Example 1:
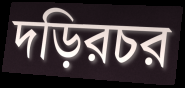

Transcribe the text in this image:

দড়িরচর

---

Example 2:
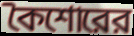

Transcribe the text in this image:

কৈশোরের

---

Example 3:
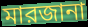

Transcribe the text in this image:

মারজানা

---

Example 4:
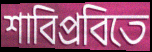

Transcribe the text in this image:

শাবিপ্রবিতে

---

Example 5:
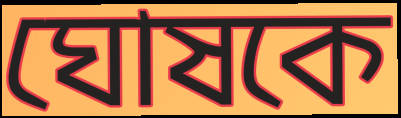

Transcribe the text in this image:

ঘোষকে